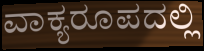
ವಾಕ್ಯರೂಪದಲ್ಲಿ